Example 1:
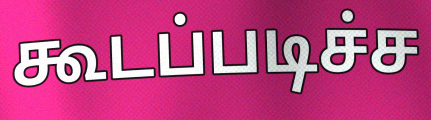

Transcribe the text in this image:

கூடப்படிச்ச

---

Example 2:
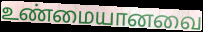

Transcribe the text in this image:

உண்மையானவை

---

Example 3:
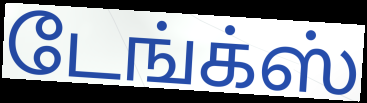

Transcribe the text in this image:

டேங்க்ஸ்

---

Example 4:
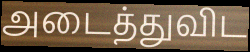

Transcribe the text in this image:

அடைத்துவிட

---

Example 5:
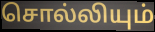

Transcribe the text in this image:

சொல்லியும்